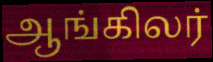
ஆங்கிலர்